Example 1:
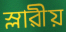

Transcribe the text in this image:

স্লাৱীয়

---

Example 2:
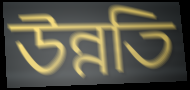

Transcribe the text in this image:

উন্নতি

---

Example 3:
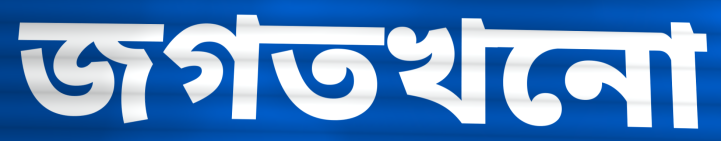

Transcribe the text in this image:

জগতখনো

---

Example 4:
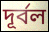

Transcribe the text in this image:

দূৰ্বল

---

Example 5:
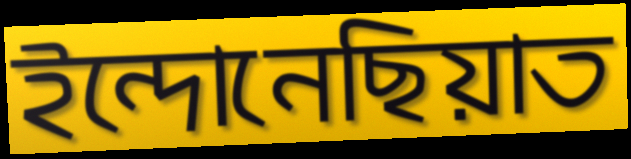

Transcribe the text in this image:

ইন্দোনেছিয়াত